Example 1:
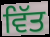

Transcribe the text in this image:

ਵਿੱਤ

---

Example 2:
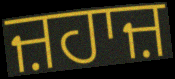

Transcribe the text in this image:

ਜ਼ਹਾਜ਼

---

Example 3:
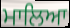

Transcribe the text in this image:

ਮਾਲਿਆ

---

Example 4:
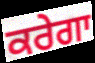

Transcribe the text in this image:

ਕਰੇਗਾ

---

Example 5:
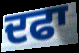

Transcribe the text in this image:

ਦਫਾ